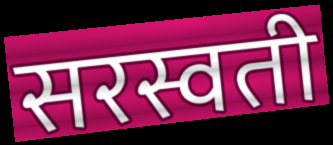
सरस्वती